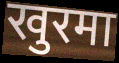
खुरमा